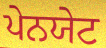
ਪੇਨਯੇਟ